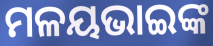
ମଳୟଭାଇଙ୍କ